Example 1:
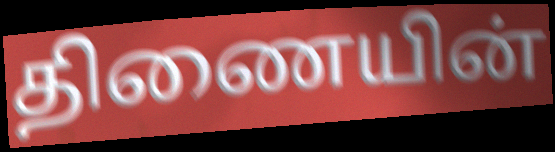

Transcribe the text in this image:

திணையின்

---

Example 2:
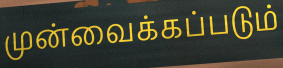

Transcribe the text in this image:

முன்வைக்கப்படும்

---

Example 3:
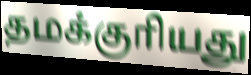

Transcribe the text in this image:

தமக்குரியது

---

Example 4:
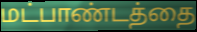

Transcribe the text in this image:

மட்பாண்டத்தை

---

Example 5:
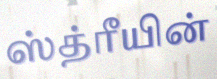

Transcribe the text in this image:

ஸ்த்ரீயின்